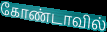
கோண்டாவில்